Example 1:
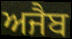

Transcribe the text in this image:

ਅਜੈਬ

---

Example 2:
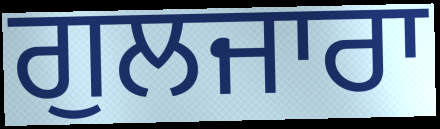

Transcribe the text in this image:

ਗੁਲਜਾਰਾ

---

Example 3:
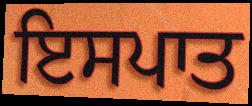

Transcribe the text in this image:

ਇਸਪਾਤ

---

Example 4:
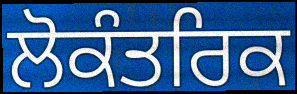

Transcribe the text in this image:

ਲੋਕੰਤਰਿਕ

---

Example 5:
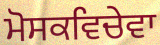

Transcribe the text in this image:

ਮੋਸਕਵਿਚੇਵਾ